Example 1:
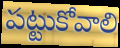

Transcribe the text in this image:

పట్టుకోవాలి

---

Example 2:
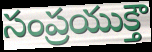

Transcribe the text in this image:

సంప్రయుక్తౌ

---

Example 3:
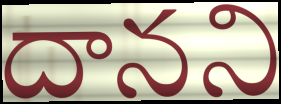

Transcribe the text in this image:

దానని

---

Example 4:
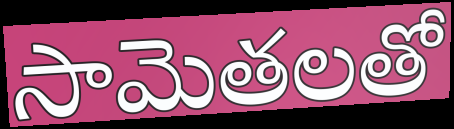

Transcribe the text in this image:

సామెతలతో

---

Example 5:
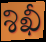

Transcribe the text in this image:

శిఖీ